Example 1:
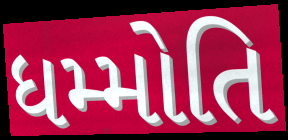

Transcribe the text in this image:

ધમ્મોતિ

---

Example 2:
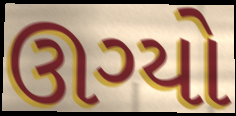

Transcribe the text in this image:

ઊગ્યો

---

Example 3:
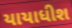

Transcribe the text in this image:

યાયાધીશ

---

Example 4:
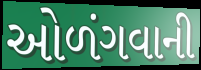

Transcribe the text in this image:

ઓળંગવાની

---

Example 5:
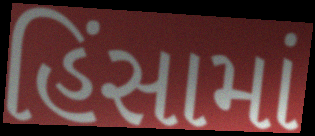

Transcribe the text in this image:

હિંસામાં